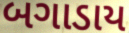
બગાડાય